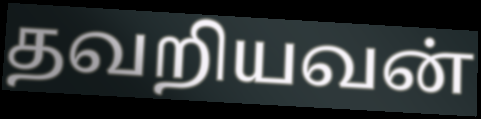
தவறியவன்